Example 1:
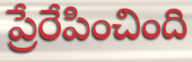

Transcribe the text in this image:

ప్రేరేపించింది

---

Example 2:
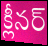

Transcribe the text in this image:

క్లీనర్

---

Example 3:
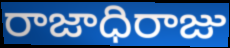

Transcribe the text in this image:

రాజాధిరాజు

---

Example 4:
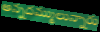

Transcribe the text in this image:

అన్నదమ్ములున్నారు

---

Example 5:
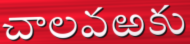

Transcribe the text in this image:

చాలవఱకు